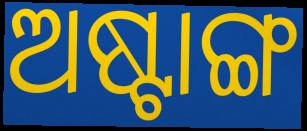
ଅଷ୍ଟାଙ୍ଗ